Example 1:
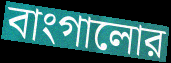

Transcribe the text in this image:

বাংগালোর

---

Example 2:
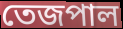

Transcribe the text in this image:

তেজপাল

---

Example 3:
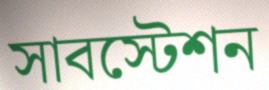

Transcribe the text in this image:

সাবস্টেশন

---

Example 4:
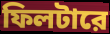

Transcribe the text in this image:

ফিলটারে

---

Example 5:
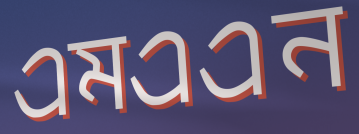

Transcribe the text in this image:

এমএএন